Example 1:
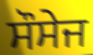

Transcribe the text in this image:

ਸੌਸੇਜ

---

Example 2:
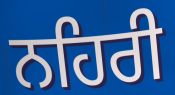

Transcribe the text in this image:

ਨਹਿਰੀ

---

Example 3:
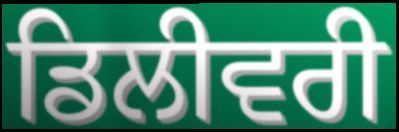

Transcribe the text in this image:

ਡਿਲੀਵਰੀ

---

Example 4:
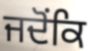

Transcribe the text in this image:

ਜਦੋਂਕਿ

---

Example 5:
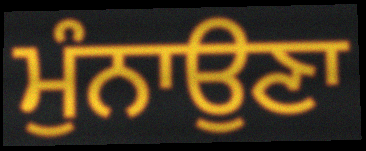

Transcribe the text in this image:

ਮੁੰਨਾਉਣਾ